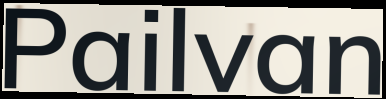
Pailvan